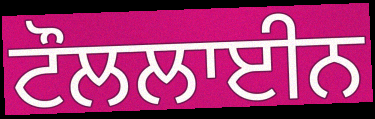
ਟੌਲਲਾਈਨ